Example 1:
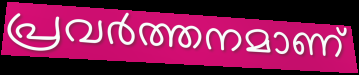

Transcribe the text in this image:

പ്രവർത്തനമാണ്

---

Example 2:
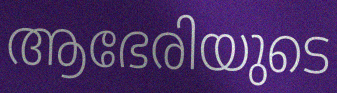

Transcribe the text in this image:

ആഭേരിയുടെ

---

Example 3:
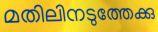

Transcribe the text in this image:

മതിലിനടുത്തേക്കു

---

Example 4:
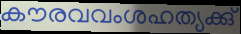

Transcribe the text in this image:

കൗരവവംശഹത്യക്കു്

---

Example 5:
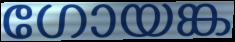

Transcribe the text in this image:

ഗോയങ്ക